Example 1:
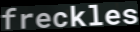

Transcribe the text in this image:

freckles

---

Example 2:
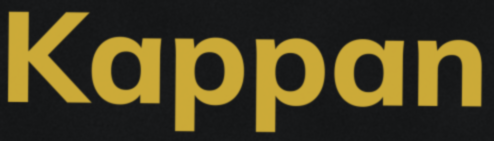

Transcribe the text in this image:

Kappan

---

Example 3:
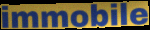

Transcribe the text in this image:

immobile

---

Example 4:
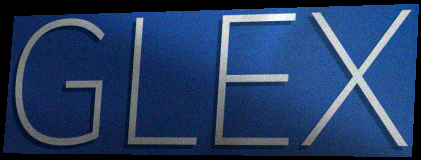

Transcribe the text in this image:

GLEX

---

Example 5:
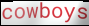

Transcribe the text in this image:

cowboys